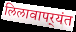
लिलावापर्यंत